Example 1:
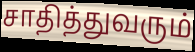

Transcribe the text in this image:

சாதித்துவரும்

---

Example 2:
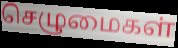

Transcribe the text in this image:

செழுமைகள்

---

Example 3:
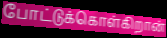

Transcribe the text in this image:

போட்டுக்கொள்கிறான்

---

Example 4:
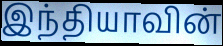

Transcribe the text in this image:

இந்தியாவின்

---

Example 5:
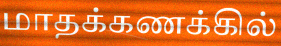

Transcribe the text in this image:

மாதக்கணக்கில்